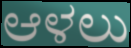
ಆಳಲು